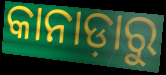
କାନାଡ଼ାରୁ